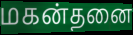
மகன்தனை